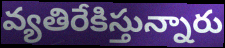
వ్యతిరేకిస్తున్నారు